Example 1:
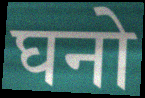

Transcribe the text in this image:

घनो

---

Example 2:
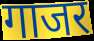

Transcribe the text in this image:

गाजर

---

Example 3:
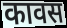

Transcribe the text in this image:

कावस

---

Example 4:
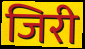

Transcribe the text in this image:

जिरी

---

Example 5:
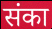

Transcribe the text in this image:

संका